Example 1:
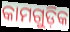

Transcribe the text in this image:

କାମଗୁଡ଼ିକ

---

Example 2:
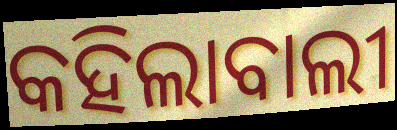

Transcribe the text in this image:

କହିଲାବାଲୀ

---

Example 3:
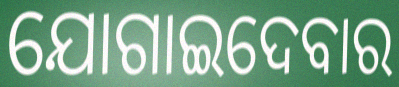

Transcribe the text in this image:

ଯୋଗାଇଦେବାର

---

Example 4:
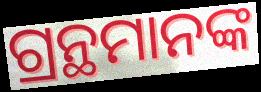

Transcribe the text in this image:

ଗ୍ରନ୍ଥମାନଙ୍କ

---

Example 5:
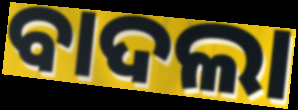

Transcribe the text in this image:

ବାଦଲା